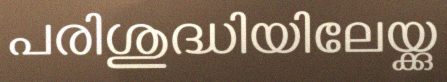
പരിശുദ്ധിയിലേയ്ക്കു